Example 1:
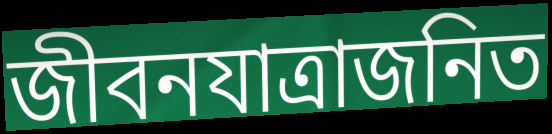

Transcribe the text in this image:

জীবনযাত্রাজনিত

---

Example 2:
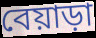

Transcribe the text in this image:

বেয়াড়া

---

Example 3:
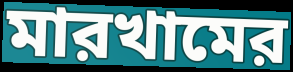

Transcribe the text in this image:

মারখামের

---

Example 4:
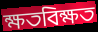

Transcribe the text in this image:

ক্ষতবিক্ষত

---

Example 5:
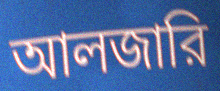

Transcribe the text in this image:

আলজারি